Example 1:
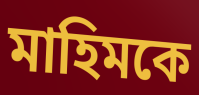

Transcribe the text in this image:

মাহিমকে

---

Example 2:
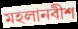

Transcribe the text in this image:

মহলানবীশ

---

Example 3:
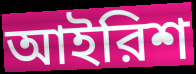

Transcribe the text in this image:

আইরিশ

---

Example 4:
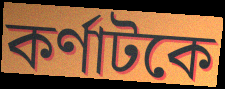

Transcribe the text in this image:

কর্ণাটকে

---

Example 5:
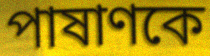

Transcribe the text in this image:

পাষাণকে